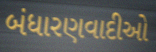
બંધારણવાદીઓ